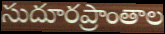
సుదూరప్రాంతాల